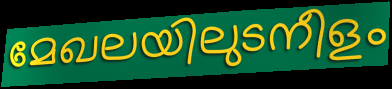
മേഖലയിലുടനീളം